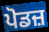
ਪੋਡਜ਼